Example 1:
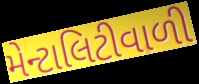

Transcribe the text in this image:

મેન્ટાલિટીવાળી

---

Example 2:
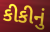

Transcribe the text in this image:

કીકીનું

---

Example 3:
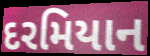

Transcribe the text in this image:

દરમિયાન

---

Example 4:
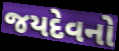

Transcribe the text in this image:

જયદેવનો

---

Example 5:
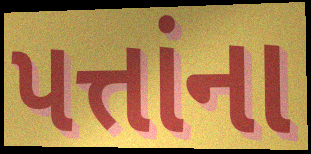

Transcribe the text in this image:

પત્તાંના